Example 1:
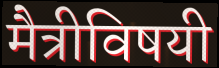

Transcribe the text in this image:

मैत्रीविषयी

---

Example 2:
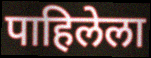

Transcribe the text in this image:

पाहिलेला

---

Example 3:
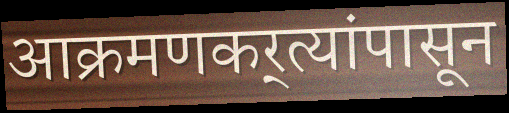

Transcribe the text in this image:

आक्रमणकर्त्यांपासून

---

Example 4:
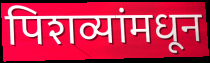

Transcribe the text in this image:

पिशव्यांमधून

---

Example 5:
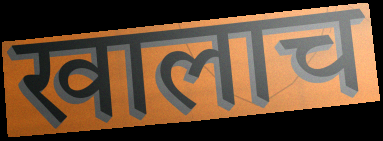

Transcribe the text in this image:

खालाच